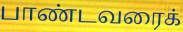
பாண்டவரைக்